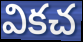
వికచ